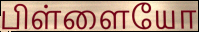
பிள்ளையோ